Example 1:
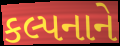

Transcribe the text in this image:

કલ્પનાને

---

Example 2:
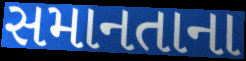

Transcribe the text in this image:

સમાનતાના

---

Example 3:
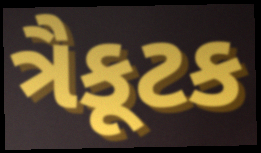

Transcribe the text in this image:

ત્રૈકૂટક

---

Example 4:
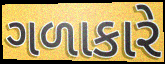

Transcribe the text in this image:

ગળાકારે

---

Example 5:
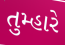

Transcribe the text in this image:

તુમ્હારે